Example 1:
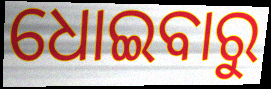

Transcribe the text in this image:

ଧୋଇବାରୁ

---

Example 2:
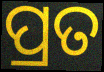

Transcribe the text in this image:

ପ୍ରତ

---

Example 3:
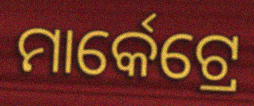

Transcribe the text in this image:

ମାର୍କେଟ୍ରେ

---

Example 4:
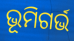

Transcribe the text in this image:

ଭୂମିଗର୍ଭ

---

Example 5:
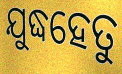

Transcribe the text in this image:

ଯୁଦ୍ଧହେତୁ